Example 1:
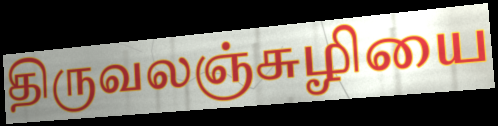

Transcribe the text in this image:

திருவலஞ்சுழியை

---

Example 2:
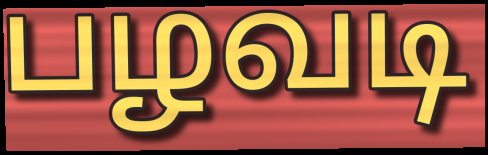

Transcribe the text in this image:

பழவடி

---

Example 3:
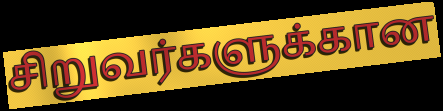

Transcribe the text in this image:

சிறுவர்களுக்கான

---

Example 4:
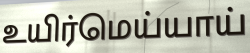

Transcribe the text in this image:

உயிர்மெய்யாய்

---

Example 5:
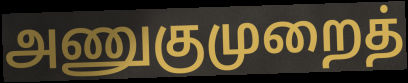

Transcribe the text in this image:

அணுகுமுறைத்